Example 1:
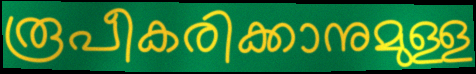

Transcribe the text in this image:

രൂപീകരിക്കാനുമുള്ള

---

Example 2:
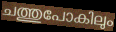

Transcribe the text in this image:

ചത്തുപോകിലും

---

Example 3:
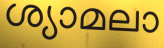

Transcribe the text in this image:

ശ്യാമലാ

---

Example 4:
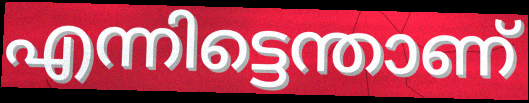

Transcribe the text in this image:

എന്നിട്ടെന്താണ്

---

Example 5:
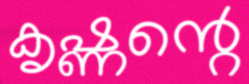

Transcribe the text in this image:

കൃഷ്ണന്റെ